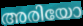
അരിയോ